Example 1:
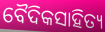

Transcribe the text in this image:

ବୈଦିକସାହିତ୍ୟ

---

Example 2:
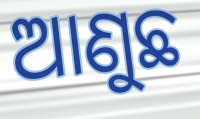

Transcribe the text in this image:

ଆଣୁଛ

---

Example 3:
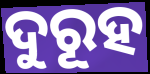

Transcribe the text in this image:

ଦୁରୂହ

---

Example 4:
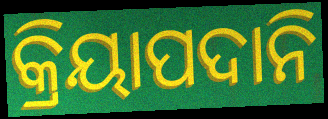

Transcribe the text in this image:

କ୍ରିୟାପଦାନି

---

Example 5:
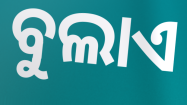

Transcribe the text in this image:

ବୁଲାଏ